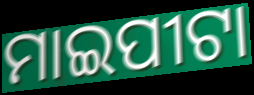
ମାଇପୀଟା